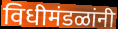
विधीमंडळांनी